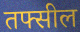
तफ्सील